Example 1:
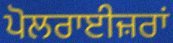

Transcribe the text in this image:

ਪੋਲਰਾਈਜ਼ਰਾਂ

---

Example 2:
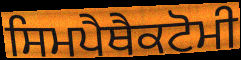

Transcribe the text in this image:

ਸਿਮਪੈਥੈਕਟੋਮੀ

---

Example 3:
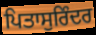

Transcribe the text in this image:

ਪਿਤਾਸੁਰਿੰਦਰ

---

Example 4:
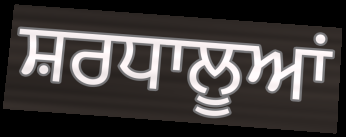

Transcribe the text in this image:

ਸ਼ਰਧਾਲੂਆਂ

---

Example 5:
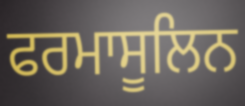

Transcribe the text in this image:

ਫਰਮਾਸੂਲਿਨ